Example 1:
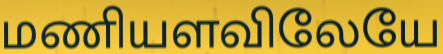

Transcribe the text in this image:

மணியளவிலேயே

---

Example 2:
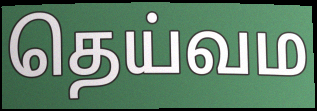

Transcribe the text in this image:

தெய்வம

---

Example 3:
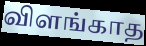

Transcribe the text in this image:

விளங்காத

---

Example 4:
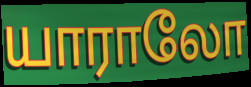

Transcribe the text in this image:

யாராலோ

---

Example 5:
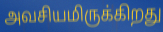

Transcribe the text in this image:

அவசியமிருக்கிறது